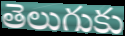
తెలుగుకు